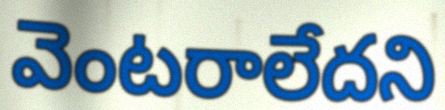
వెంటరాలేదని